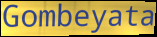
Gombeyata